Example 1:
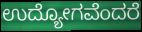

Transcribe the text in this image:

ಉದ್ಯೋಗವೆಂದರೆ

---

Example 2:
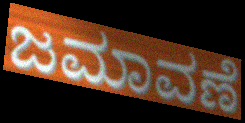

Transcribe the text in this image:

ಜಮಾವಣೆ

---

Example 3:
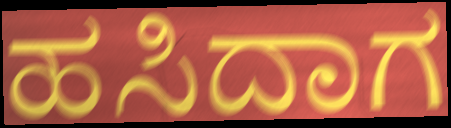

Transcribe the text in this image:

ಹಸಿದಾಗ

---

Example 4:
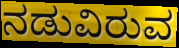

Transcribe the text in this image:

ನಡುವಿರುವ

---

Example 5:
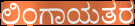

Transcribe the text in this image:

ಲಿಂಗಾಯತರ